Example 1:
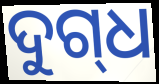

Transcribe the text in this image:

ଦୁଗ୍‌ଧ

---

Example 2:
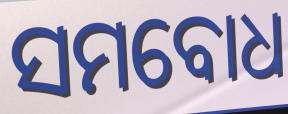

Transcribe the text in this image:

ସମବୋଧ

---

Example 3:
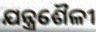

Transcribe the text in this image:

ଯନ୍ତ୍ରଶୈଳୀ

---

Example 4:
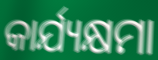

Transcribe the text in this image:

କାର୍ଯ୍ୟକ୍ଷମା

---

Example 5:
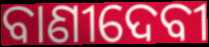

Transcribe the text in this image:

ବାଣୀଦେବୀ